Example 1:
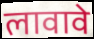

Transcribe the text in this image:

लावावे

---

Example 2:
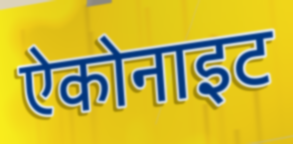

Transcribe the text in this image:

ऐकोनाइट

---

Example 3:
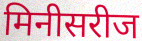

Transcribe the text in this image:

मिनीसरीज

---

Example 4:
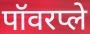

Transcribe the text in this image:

पॉवरप्ले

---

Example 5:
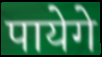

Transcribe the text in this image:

पायेगे